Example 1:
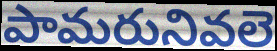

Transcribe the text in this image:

పామరునివలె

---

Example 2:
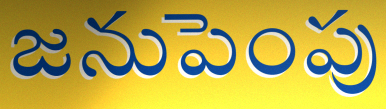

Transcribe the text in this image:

జనుపెంపు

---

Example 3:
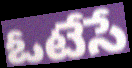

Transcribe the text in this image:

ఓటేసే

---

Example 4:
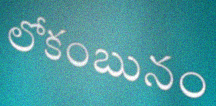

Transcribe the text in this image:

లోకంబునం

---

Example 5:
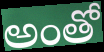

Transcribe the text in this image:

అంతో